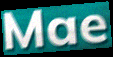
Mae